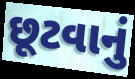
છૂટવાનું